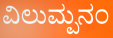
ವಿಲುಮ್ಪನಂ